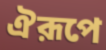
ঐরূপে